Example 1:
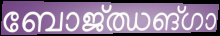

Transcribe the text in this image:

ബോജ്ഝങ്ഗാ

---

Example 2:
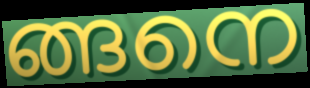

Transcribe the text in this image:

ങ്ങനെ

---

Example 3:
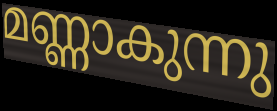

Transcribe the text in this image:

മണ്ണാകുന്നു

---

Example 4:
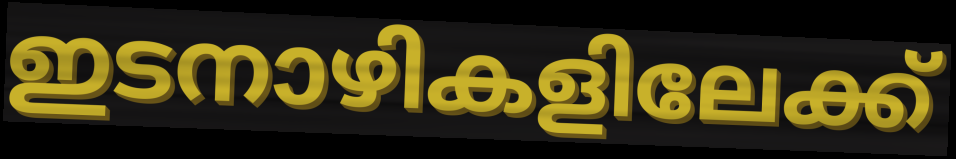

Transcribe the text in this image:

ഇടനാഴികളിലേക്ക്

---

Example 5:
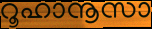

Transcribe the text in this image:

റൂഹാനൂസാ